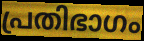
പ്രതിഭാഗം